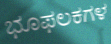
ಭೂಫಲಕಗಳ